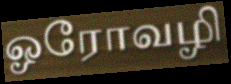
ஓரோவழி